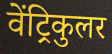
वेंट्रिकुलर